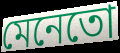
মেনেতো